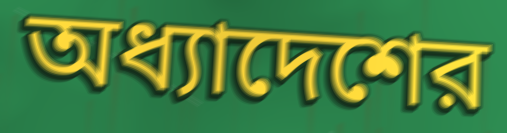
অধ্যাদেশের